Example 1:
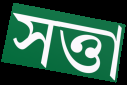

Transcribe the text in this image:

সত্তা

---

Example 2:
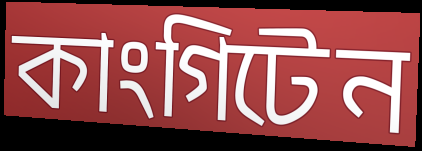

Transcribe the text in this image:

কাংগিটেন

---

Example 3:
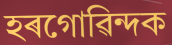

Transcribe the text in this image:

হৰগোৱিন্দক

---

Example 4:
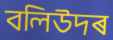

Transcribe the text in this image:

বলিউদৰ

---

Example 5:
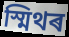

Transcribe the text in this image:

স্মিথৰ